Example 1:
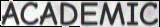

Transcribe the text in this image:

ACADEMIC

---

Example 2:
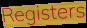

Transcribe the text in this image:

Registers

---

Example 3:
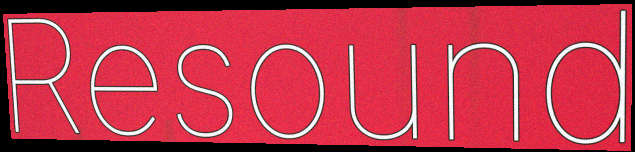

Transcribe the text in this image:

Resound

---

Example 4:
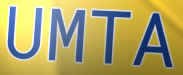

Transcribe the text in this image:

UMTA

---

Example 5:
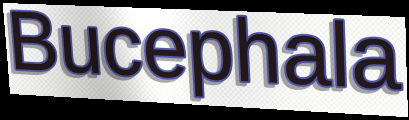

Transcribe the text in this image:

Bucephala